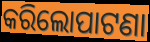
କରିଲୋପାଟଣା